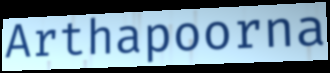
Arthapoorna